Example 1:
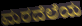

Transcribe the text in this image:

ಮರದೆಲೆಯ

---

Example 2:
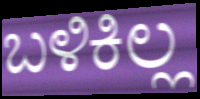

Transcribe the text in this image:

ಬಳಿಕಿಲ್ಲ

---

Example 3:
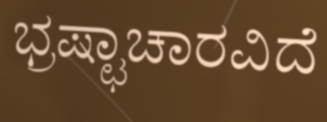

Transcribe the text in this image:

ಭ್ರಷ್ಟಾಚಾರವಿದೆ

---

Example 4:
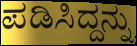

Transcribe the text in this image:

ಪಡಿಸಿದ್ದನ್ನು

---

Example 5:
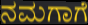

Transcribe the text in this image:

ನಮಗಾಗೆ